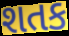
શતક